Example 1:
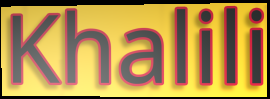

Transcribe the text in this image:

Khalili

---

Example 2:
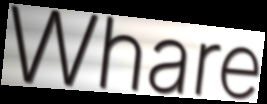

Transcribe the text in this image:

Whare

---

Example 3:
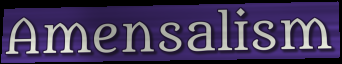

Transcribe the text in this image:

Amensalism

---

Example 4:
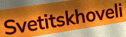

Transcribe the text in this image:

Svetitskhoveli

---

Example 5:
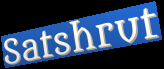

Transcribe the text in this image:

Satshrut